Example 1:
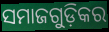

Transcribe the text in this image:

ସମାଜଗୁଡ଼ିକର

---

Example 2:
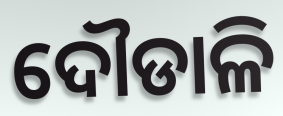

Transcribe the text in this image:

ଦୌଡାଳି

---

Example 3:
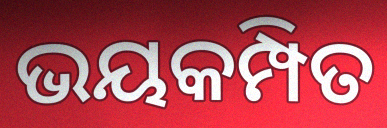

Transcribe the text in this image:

ଭୟକମ୍ପିତ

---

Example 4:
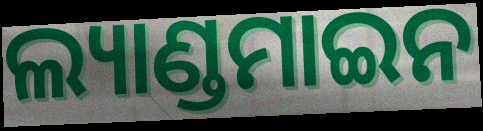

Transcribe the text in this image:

ଲ୍ୟାଣ୍ଡମାଇନ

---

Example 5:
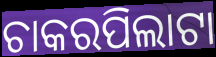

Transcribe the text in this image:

ଚାକରପିଲାଟା